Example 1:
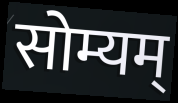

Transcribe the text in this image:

सोम्यम्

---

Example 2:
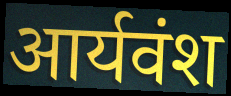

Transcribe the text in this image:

आर्यवंश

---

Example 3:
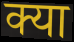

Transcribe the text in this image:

क्या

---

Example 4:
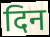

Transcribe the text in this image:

दिन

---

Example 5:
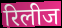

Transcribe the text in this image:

रिलीज